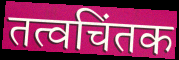
तत्वचिंतक